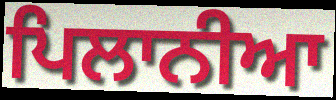
ਪਿਲਾਨੀਆ